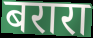
बरारा